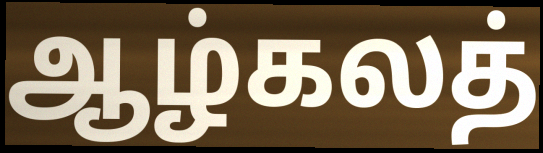
ஆழ்கலத்